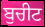
ਬੁਚੀਟ